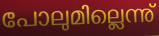
പോലുമില്ലെന്നു്